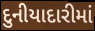
દુનીયાદારીમાં